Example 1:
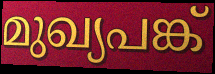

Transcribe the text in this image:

മുഖ്യപങ്ക്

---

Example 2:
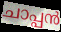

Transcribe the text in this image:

ചാപ്പൻ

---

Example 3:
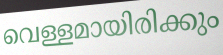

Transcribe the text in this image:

വെള്ളമായിരിക്കും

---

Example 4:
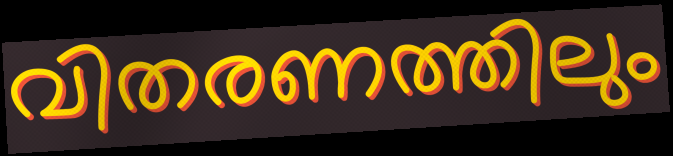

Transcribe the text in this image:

വിതരണത്തിലും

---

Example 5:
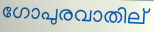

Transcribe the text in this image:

ഗോപുരവാതില്